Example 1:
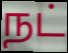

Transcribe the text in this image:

நட்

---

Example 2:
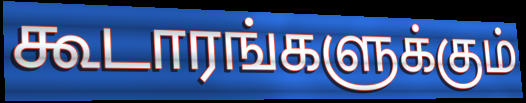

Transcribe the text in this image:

கூடாரங்களுக்கும்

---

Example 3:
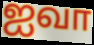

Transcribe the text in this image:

ஐவா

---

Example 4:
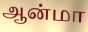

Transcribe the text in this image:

ஆன்மா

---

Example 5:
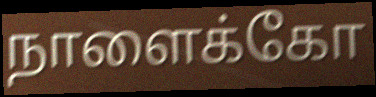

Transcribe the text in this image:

நாளைக்கோ